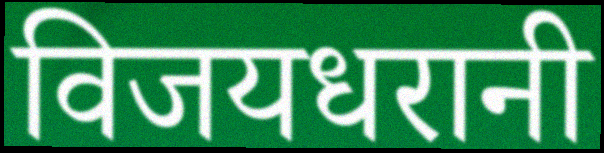
विजयधरानी